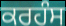
ਕਰਹੰਸ